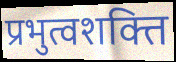
प्रभुत्वशक्ति